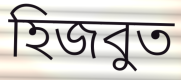
হিজবুত